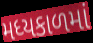
મધ્યકાળમાં